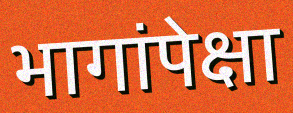
भागांपेक्षा